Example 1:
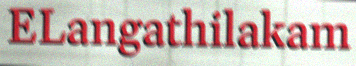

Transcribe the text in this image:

ELangathilakam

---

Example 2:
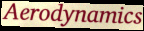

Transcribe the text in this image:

Aerodynamics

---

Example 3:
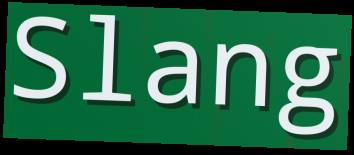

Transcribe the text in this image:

Slang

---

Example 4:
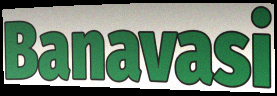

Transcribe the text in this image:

Banavasi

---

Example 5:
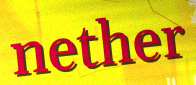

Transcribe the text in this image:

nether